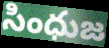
సింధుజ